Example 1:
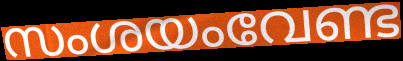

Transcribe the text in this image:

സംശയംവേണ്ട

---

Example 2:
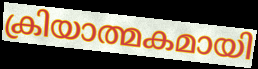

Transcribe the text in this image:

ക്രിയാത്മകമായി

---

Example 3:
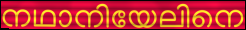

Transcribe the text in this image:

നഥാനിയേലിനെ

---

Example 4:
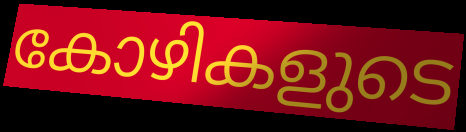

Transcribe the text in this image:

കോഴികളുടെ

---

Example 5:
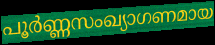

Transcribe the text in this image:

പൂർണ്ണസംഖ്യാഗണമായ